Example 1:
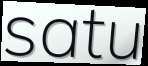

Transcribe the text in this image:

satu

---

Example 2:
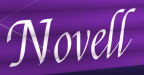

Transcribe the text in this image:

Novell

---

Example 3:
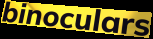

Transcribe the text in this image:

binoculars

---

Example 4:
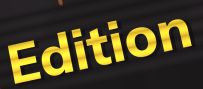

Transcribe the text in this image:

Edition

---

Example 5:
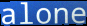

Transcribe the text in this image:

alone